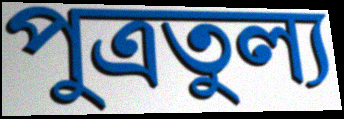
পুত্রতুল্য